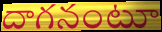
దాగనంటూ